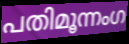
പതിമൂന്നംഗ